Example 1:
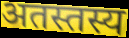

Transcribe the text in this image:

अतस्तस्य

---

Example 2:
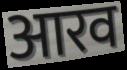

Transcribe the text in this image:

आरव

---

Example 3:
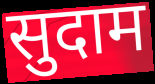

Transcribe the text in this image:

सुदाम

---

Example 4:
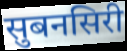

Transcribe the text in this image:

सुबनसिरी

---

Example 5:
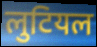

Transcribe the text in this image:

लुटियल